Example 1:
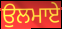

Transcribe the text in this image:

ਉਲਮਾਏ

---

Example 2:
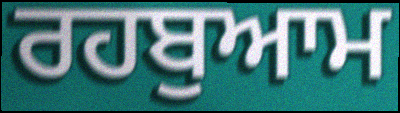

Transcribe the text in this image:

ਰਹਬੁਆਮ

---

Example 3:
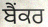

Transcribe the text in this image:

ਬੈਂਕਰ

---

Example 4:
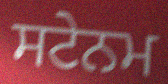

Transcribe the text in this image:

ਸਟੇਨਮ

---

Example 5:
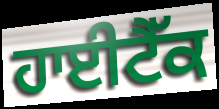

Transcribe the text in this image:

ਹਾਈਟੈੱਕ